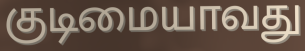
குடிமையாவது